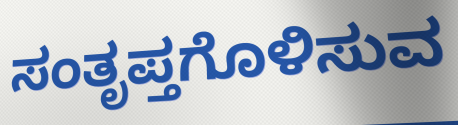
ಸಂತೃಪ್ತಗೊಳಿಸುವ